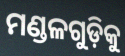
ମଣ୍ଡଳଗୁଡ଼ିକୁ